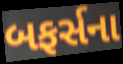
બફર્સના